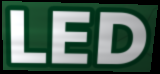
LED